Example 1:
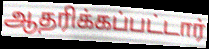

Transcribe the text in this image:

ஆதரிக்கப்பட்டார்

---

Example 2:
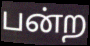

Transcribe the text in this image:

பன்ற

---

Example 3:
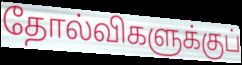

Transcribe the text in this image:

தோல்விகளுக்குப்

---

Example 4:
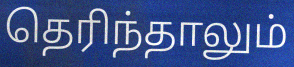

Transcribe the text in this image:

தெரிந்தாலும்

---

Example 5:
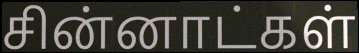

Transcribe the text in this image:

சின்னாட்கள்